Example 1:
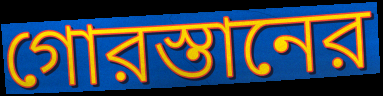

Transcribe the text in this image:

গোরস্তানের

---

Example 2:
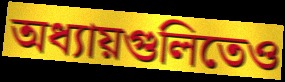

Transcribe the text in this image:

অধ্যায়গুলিতেও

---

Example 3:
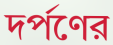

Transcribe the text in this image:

দর্পণের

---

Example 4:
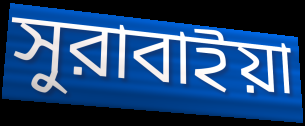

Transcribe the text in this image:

সুরাবাইয়া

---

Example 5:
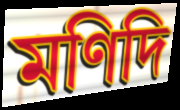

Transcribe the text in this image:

মণিদি